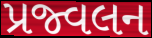
પ્રજ્વલન